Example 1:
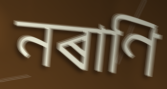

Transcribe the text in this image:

নৰাণি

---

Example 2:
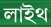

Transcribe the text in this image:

লাইথ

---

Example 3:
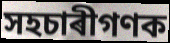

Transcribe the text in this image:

সহচাৰীগণক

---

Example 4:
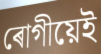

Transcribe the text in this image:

ৰোগীয়েই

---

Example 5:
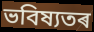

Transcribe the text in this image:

ভবিষ্যতৰ